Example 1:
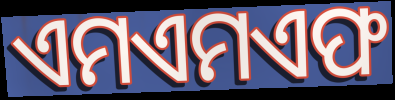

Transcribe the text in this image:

ଏମଏମଏଫ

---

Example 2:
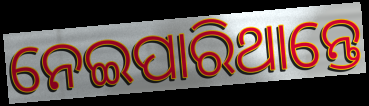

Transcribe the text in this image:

ନେଇପାରିଥାନ୍ତେ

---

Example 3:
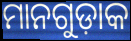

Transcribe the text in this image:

ମାନଗୁଡ଼ାକ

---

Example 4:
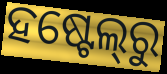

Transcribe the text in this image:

ହଷ୍ଟେଲ୍‍ରୁ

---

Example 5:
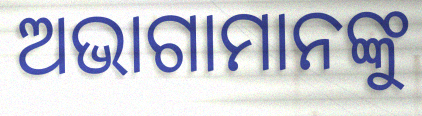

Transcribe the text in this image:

ଅଭାଗାମାନଙ୍କୁ